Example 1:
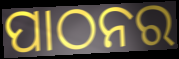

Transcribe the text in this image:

ପାଠନର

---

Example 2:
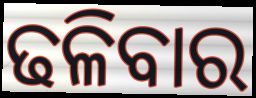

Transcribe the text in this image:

ଢଳିବାର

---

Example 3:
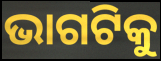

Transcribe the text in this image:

ଭାଗଟିକୁ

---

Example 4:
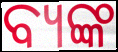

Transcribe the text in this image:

ବ୍ୟଙ୍କ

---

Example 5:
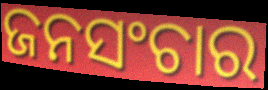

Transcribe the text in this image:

ଜନସଂଚାର